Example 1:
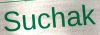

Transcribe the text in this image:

Suchak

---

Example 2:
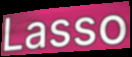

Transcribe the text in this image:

Lasso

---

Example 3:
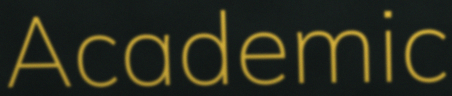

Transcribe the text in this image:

Academic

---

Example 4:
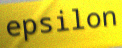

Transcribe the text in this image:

epsilon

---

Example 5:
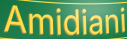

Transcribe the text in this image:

Amidiani